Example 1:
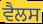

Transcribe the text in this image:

ਵੈਲਸ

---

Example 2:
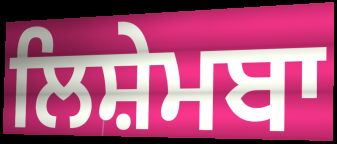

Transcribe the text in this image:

ਲਿਸ਼ੇਮਬਾ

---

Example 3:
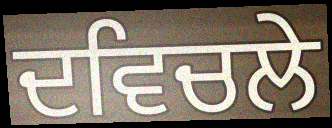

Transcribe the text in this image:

ਦਵਿਚਲੇ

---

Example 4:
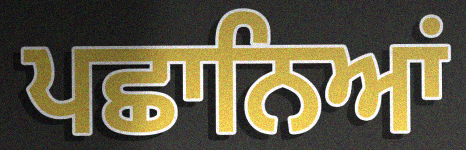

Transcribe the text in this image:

ਪਛਾਨਿਆਂ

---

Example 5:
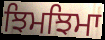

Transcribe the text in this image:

ਝਿਮਝਿਮਾ